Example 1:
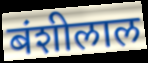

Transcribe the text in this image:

बंशीलाल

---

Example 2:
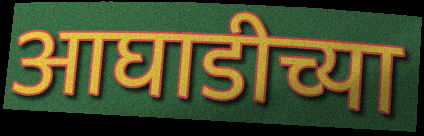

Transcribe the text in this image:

आघाडीच्‍या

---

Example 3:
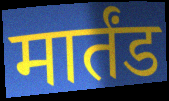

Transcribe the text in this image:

मार्तंड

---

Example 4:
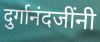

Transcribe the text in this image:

दुर्गानंदजींनी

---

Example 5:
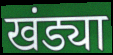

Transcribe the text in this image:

खंड्या